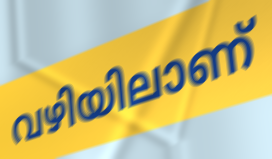
വഴിയിലാണ്